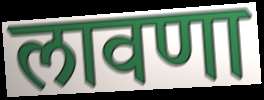
लावणा